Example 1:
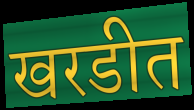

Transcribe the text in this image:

खरडीत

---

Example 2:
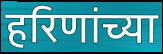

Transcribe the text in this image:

हरिणांच्या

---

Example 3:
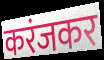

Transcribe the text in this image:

करंजकर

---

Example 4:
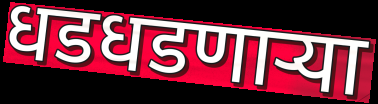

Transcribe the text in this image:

धडधडणाऱ्या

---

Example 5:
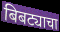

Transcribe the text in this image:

बिबट्याचा